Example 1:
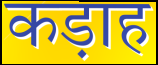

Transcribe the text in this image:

कड़ाह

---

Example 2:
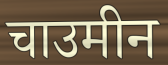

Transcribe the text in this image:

चाउमीन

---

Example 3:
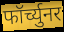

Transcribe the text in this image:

फॉर्च्युनर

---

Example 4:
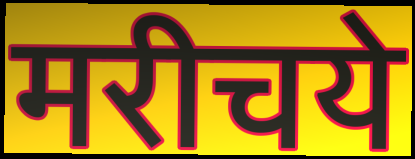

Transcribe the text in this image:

मरीचये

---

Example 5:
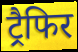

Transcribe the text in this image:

ट्रैफिर